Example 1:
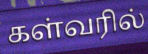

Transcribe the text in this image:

கள்வரில்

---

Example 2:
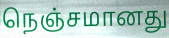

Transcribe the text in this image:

நெஞ்சமானது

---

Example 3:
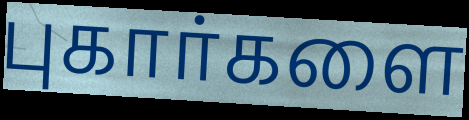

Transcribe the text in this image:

புகார்களை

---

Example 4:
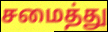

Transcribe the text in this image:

சமைத்து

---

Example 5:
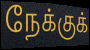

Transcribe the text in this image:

நேக்குக்